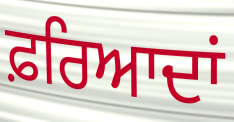
ਫ਼ਰਿਆਦਾਂ